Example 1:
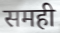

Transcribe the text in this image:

समही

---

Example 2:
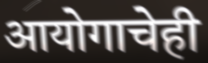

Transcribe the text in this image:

आयोगाचेही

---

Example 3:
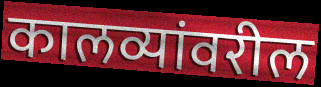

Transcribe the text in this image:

कालव्यांवरील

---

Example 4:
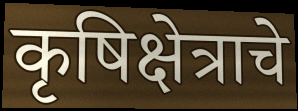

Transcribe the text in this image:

कृषिक्षेत्राचे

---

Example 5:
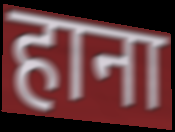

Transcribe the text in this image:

हाना